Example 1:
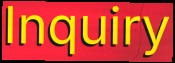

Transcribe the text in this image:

Inquiry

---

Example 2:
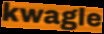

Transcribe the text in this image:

kwagle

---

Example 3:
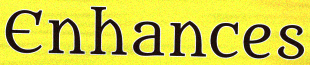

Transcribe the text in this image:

Enhances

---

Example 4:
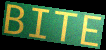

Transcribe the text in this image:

BITE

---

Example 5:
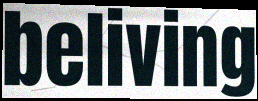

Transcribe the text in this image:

beliving